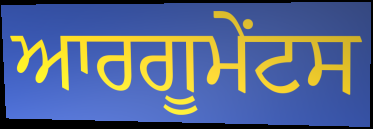
ਆਰਗੂਮੇੰਟਸ